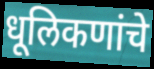
धूलिकणांचे